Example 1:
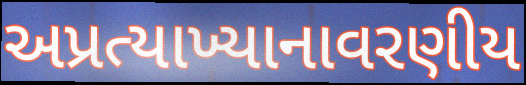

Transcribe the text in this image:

અપ્રત્યાખ્યાનાવરણીય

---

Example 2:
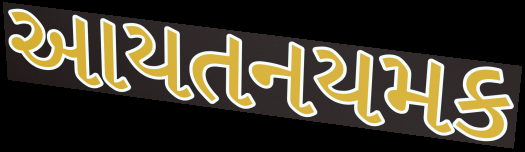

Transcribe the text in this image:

આયતનયમક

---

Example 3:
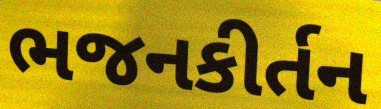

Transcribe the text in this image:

ભજનકીર્તન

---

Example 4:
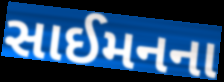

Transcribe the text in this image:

સાઈમનના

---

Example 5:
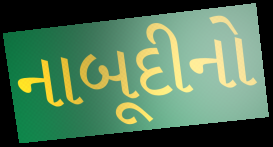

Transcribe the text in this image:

નાબૂદીનો